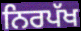
ਨਿਰਪੱਖ